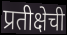
प्रतीक्षेची